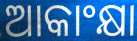
ଆକାଂକ୍ଷା